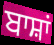
ਬਾਸ਼ਾਂ